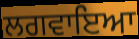
ਲਗਵਾਇਆ